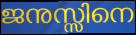
ജനുസ്സിനെ